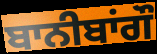
ਬਾਨੀਬਾਂਗੌ